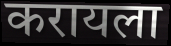
करायला